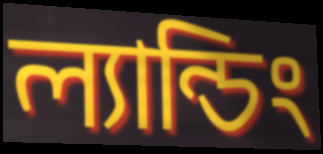
ল্যান্ডিং